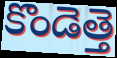
కొండెత్తె